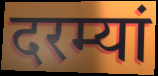
दरम्यां